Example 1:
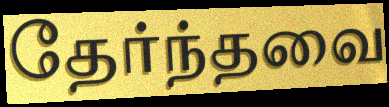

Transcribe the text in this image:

தேர்ந்தவை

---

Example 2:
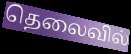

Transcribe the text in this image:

தெலைவில்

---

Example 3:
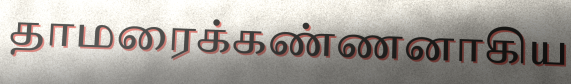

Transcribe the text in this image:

தாமரைக்கண்ணனாகிய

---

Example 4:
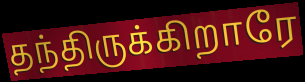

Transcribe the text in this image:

தந்திருக்கிறாரே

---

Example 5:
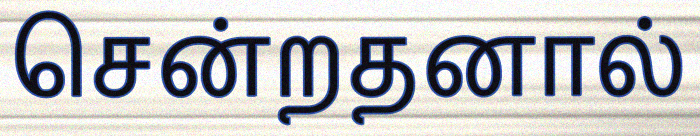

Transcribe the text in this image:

சென்றதனால்